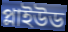
প্লাইউড